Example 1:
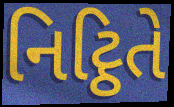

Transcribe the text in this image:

નિટ્ઠિતે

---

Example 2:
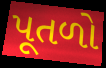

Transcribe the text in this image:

પૂતળો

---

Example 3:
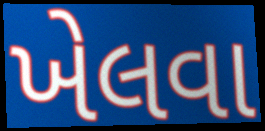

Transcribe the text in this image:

ખેલવા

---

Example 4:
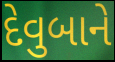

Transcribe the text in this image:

દેવુબાને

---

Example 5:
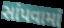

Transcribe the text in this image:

સાંપવામાં